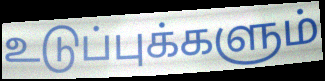
உடுப்புக்களும்